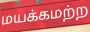
மயக்கமற்ற